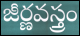
జీర్ణవస్త్రం